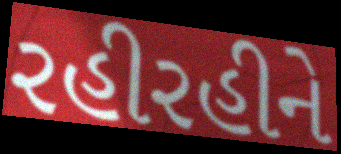
રહીરહીને